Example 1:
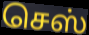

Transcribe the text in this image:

செஸ்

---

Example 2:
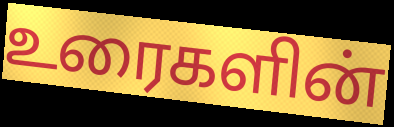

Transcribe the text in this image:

உரைகளின்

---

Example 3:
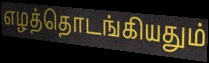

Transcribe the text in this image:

எழத்தொடங்கியதும்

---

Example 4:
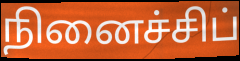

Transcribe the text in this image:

நினைச்சிப்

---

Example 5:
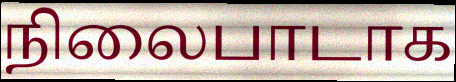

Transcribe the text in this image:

நிலைபாடாக